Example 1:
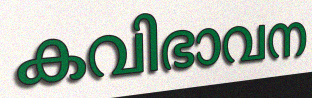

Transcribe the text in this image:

കവിഭാവന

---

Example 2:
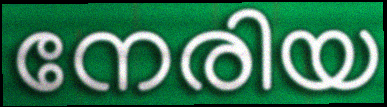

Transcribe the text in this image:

നേരിയ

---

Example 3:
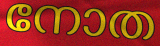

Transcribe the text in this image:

നോത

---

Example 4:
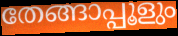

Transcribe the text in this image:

തേങ്ങാപ്പൂളും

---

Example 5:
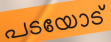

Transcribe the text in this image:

പടയോട്